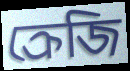
ক্রেজি